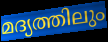
മദ്യത്തിലും